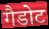
गैडोट